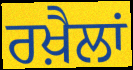
ਰਖ਼ੈਲਾਂ